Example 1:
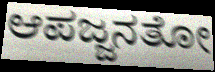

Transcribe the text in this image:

ಆಪಜ್ಜನತೋ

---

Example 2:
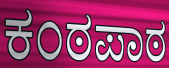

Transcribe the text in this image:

ಕಂಠಪಾಠ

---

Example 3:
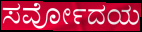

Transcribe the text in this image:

ಸರ್ವೋದಯ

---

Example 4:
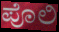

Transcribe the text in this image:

ಪೊಲಿ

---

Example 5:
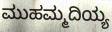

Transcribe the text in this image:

ಮುಹಮ್ಮದಿಯ್ಯ